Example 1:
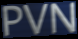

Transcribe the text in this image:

PVN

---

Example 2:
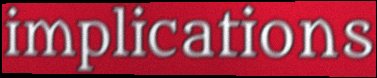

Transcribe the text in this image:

implications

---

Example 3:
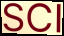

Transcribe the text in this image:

SCI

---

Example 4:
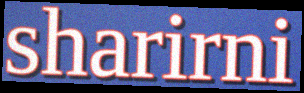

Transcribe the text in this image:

sharirni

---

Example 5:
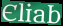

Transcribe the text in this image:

Eliab